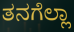
ತನಗೆಲ್ಲಾ